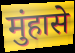
मुंहासे